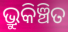
ଭ୍ରୁକିଞ୍ଚିତ